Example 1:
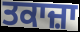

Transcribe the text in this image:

ਤਕਾਜ਼ਾ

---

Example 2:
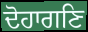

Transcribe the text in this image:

ਦੋਹਾਗਣਿ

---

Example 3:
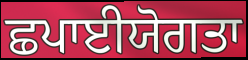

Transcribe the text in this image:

ਛਪਾਈਯੋਗਤਾ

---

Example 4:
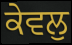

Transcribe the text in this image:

ਕੇਵਲੁ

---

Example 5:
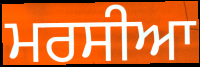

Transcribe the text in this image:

ਮਰਸੀਆ